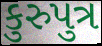
કુરુપુત્ર